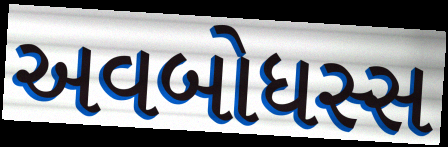
અવબોધસ્સ